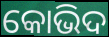
କୋଭିଦ